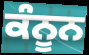
ਕੰਨੂਨ